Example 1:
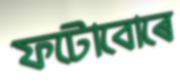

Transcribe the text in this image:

ফটোবোৰে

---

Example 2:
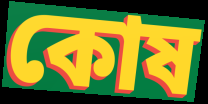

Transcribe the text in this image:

কোষ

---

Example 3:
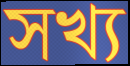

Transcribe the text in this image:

সখ্য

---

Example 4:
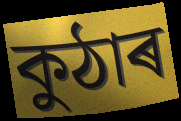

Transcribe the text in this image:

কুঠাৰ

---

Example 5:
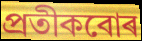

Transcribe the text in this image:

প্ৰতীকবোৰ